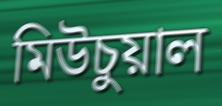
মিউচুয়াল